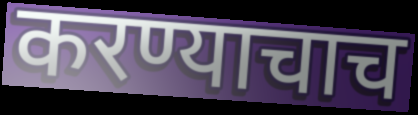
करण्याचाच